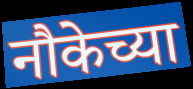
नौकेच्या